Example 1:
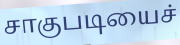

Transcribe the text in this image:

சாகுபடியைச்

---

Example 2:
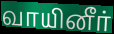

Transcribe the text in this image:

வாயினீர்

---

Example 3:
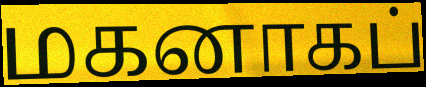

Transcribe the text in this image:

மகனாகப்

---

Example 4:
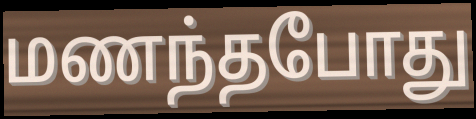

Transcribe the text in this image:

மணந்தபோது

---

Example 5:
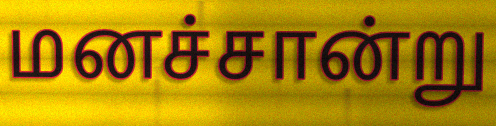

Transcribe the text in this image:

மனச்சான்று